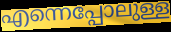
എന്നെപ്പോലുള്ള